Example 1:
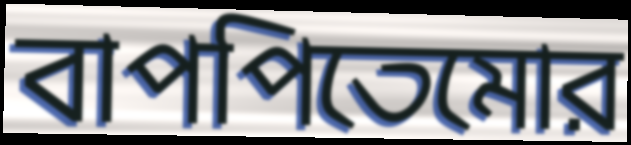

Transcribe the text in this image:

বাপপিতেমোর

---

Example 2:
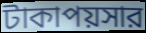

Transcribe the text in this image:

টাকাপয়সার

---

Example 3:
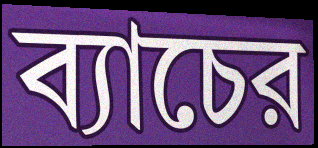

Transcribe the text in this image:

ব্যাচের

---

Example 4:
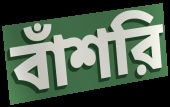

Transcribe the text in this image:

বাঁশরি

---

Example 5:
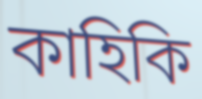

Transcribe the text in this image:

কাহিকি